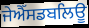
ਜੇਐੱਸਡਬਲਿਊ